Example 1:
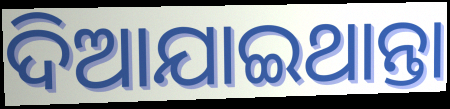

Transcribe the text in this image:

ଦିଆଯାଇଥାନ୍ତା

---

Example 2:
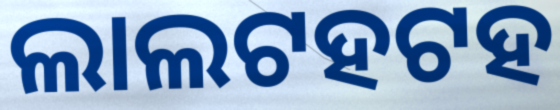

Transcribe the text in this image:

ଲାଲଟହଟହ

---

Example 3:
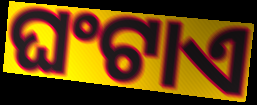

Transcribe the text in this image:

ଘଂଟାଏ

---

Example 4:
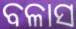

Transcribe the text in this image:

ବଳାସ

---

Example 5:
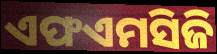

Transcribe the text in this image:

ଏଫଏମସିଜି